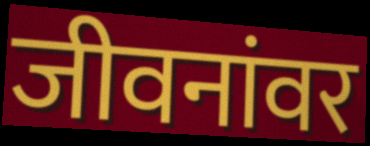
जीवनांवर